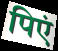
पिएं